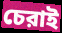
চেরাই